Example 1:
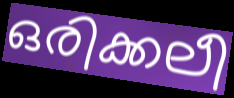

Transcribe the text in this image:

ഒരിക്കലീ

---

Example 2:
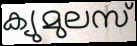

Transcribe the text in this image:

ക്യുമുലസ്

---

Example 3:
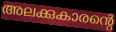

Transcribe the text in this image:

അലക്കുകാരന്റെ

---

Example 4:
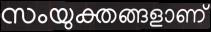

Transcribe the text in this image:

സംയുക്തങ്ങളാണ്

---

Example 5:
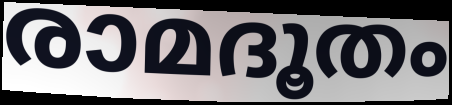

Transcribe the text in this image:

രാമദൂതം